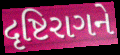
દૃષ્ટિરાગને